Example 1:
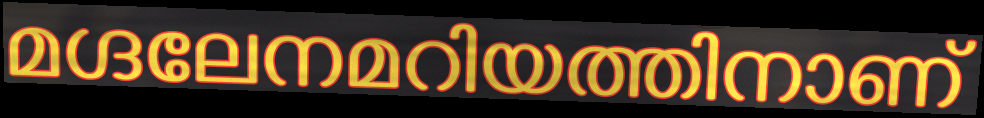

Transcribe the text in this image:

മഗ്ദലേനമറിയത്തിനാണ്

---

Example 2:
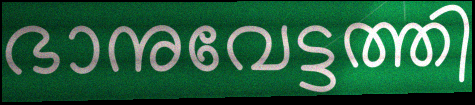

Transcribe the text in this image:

ഭാനുവേട്ടത്തി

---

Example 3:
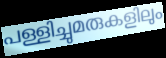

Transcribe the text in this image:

പള്ളിച്ചുമരുകളിലും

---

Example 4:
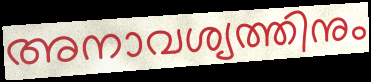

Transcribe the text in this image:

അനാവശ്യത്തിനും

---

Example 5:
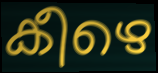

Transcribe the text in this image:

കീഴെ